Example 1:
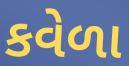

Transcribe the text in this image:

કવેળા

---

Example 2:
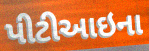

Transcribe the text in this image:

પીટીઆઇના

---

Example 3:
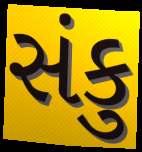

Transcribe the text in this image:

સંકુ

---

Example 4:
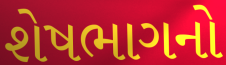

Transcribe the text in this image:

શેષભાગનો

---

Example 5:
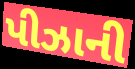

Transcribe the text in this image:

પીઝાની